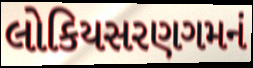
લોકિયસરણગમનં